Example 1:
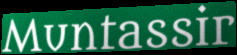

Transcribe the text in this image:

Muntassir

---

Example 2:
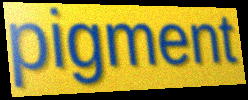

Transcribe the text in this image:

pigment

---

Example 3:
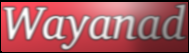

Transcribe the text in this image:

Wayanad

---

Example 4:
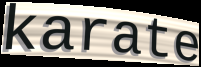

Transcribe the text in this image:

karate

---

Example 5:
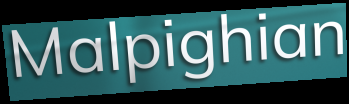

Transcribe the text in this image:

Malpighian